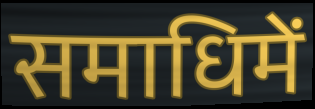
समाधिमें